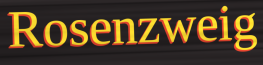
Rosenzweig